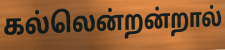
கல்லென்றன்றால்